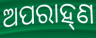
ଅପରାହ୍‌ଣ